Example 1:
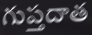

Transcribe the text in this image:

గుప్తదాత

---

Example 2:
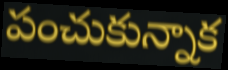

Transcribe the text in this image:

పంచుకున్నాక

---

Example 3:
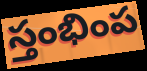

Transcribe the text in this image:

స్తంభింప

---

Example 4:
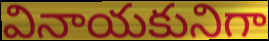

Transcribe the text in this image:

వినాయకునిగా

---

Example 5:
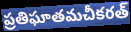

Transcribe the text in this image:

ప్రతిఘాతమచీకరత్